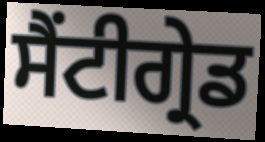
ਸੈਂਟੀਗ੍ਰੇਡ